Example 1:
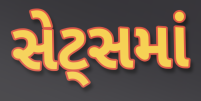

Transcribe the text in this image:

સેટ્સમાં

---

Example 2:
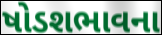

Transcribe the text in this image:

ષોડશભાવના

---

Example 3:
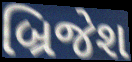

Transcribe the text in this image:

બ્રિજેશ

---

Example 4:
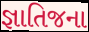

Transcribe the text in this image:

જ્ઞાતિજના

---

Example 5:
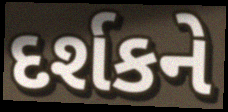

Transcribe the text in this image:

દર્શકને